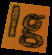
Ig